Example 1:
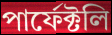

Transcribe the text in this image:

পার্ফেক্টলি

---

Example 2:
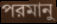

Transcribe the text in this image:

পরমানু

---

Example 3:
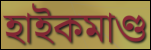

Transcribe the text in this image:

হাইকমাণ্ড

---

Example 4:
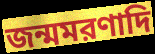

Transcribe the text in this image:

জন্মমরণাদি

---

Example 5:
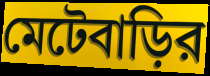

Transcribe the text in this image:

মেটেবাড়ির